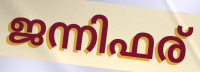
ജന്നിഫര്